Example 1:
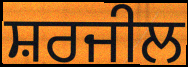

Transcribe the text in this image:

ਸ਼ਰਜੀਲ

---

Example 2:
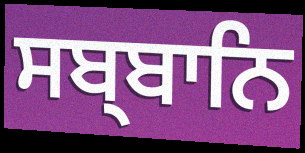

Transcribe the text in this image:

ਸਬ੍ਬਾਨਿ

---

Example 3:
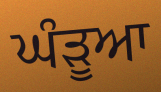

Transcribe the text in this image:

ਘੰੜੂਆ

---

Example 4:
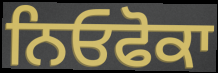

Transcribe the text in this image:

ਨਿਓਫੋਕਾ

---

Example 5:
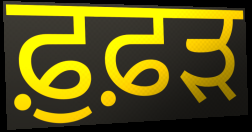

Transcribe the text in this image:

ਫ਼ੁਫ਼ੜ